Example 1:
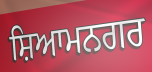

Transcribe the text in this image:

ਸ਼ਿਆਮਨਗਰ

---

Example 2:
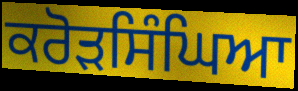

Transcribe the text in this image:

ਕਰੋੜਸਿੰਘਿਆ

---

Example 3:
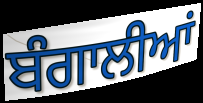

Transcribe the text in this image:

ਬੰਗਾਲੀਆਂ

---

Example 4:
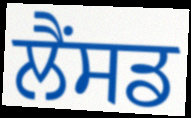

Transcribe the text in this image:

ਲੈਂਸਡ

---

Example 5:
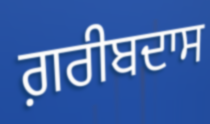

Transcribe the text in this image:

ਗ਼ਰੀਬਦਾਸ